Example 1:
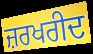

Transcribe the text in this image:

ਜ਼ਰਖਰੀਦ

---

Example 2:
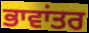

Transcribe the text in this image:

ਭਾਵਾਂਤਰ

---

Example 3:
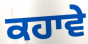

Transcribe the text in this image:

ਕਹਾਵੇ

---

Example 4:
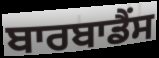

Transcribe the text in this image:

ਬਾਰਬਾਡੈਂਸ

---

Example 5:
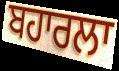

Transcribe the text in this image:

ਬਹਾਰਲਾ